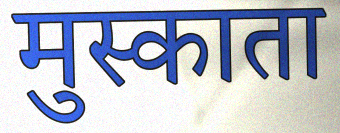
मुस्काता